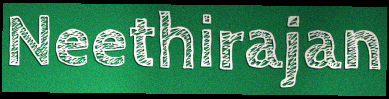
Neethirajan